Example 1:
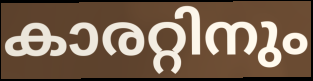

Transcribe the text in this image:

കാരറ്റിനും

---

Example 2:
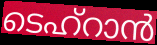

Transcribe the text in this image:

ടെഹ്റാൻ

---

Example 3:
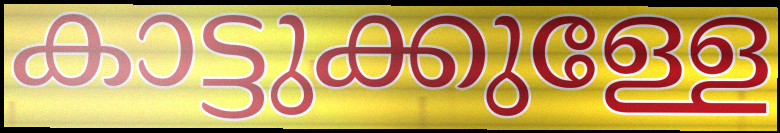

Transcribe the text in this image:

കാട്ടുക്കുള്ളേ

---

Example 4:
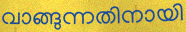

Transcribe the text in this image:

വാങ്ങുന്നതിനായി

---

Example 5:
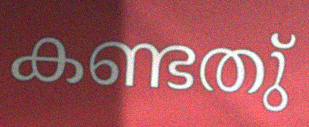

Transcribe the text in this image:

കണ്ടതു്